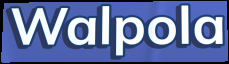
Walpola